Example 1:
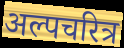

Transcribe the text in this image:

अल्पचरित्र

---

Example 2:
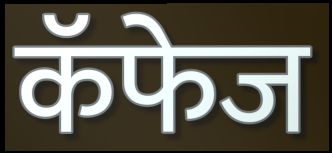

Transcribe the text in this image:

कॅफेज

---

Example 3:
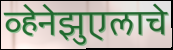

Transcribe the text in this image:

व्हेनेझुएलाचे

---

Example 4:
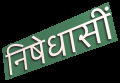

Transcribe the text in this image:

निषेधासीं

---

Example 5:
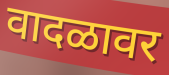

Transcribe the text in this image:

वादळावर